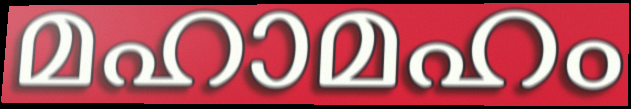
മഹാമഹം